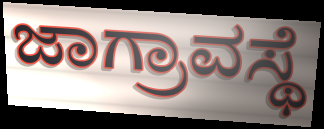
ಜಾಗ್ರಾವಸ್ಥೆ